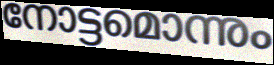
നോട്ടമൊന്നും